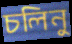
চলিনু